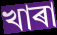
খাৰা